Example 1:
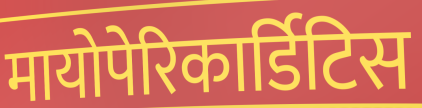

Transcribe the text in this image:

मायोपेरिकार्डिटिस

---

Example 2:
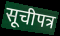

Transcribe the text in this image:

सूचीपत्र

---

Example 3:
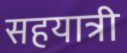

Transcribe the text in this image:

सहयात्री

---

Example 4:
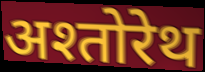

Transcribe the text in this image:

अश्तोरेथ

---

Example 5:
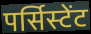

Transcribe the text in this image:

पर्सिस्टेंट